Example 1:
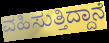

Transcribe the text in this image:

ವಹಿಸುತ್ತಿದ್ದಾನೆ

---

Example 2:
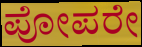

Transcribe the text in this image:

ಪೋಪರೇ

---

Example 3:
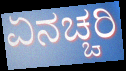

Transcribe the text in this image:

ಏನಚ್ಚರಿ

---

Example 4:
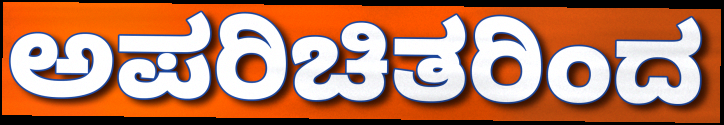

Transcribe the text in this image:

ಅಪರಿಚಿತರಿಂದ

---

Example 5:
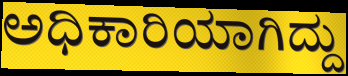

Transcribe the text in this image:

ಅಧಿಕಾರಿಯಾಗಿದ್ದು